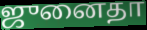
ஜுனைதா